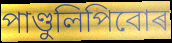
পাণ্ডুলিপিবোৰ